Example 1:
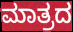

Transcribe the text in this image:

ಮಾತ್ರದ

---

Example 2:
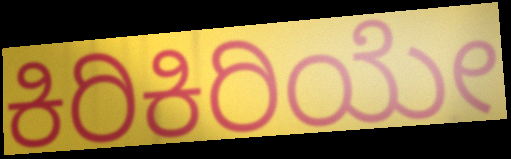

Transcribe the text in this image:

ಕಿರಿಕಿರಿಯೇ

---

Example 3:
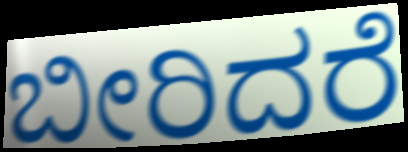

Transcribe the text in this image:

ಬೀರಿದರೆ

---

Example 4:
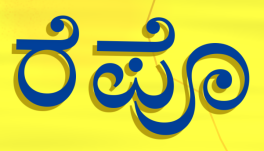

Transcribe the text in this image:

ರೆಪೊ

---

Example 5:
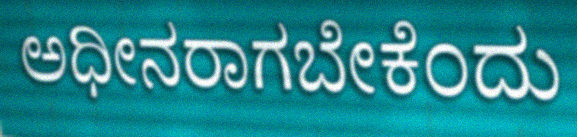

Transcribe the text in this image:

ಅಧೀನರಾಗಬೇಕೆಂದು